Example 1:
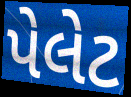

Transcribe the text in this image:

પેલેટ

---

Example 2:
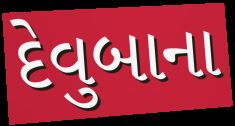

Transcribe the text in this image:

દેવુબાના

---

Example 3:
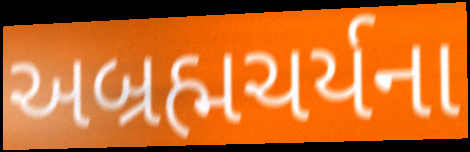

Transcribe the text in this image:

અબ્રહ્મચર્યના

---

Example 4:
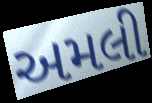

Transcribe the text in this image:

અમલી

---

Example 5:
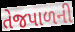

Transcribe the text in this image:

તેજપાળની